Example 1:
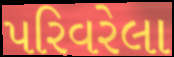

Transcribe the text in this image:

પરિવરેલા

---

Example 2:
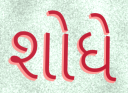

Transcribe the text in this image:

શોધે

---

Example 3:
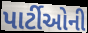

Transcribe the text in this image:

પાર્ટીઓની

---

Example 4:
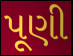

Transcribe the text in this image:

પૂણી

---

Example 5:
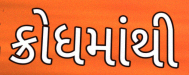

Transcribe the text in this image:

ક્રોધમાંથી